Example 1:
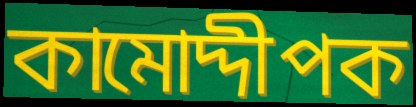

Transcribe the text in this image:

কামোদ্দীপক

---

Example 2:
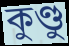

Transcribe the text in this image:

কুণ্ডু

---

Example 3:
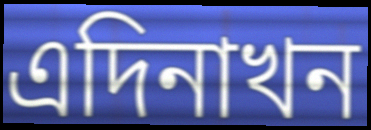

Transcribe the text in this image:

এদিনাখন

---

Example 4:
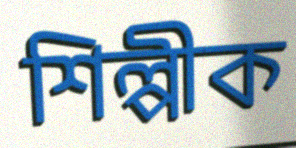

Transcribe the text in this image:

শিল্পীক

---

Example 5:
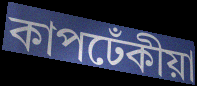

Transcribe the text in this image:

কাপঢেঁকীয়া